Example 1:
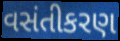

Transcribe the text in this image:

વસંતીકરણ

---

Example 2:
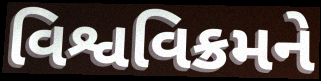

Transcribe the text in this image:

વિશ્વવિક્રમને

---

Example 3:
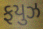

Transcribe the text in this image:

ફયુઝ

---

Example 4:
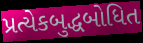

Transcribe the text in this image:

પ્રત્યેકબુદ્ધબોધિત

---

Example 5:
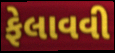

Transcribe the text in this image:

ફેલાવવી